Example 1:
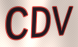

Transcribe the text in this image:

CDV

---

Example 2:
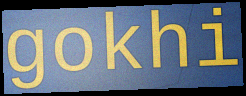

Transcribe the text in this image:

gokhi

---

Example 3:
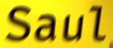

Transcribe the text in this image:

Saul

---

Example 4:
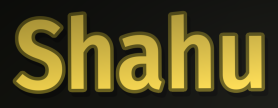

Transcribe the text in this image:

Shahu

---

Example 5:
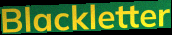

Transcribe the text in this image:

Blackletter